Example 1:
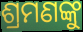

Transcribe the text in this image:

ଶ୍ରମଣଙ୍କୁ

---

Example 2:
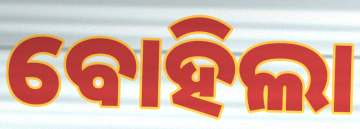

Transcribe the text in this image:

ବୋହିଲା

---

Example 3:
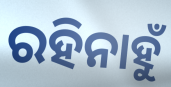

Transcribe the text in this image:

ରହିନାହୁଁ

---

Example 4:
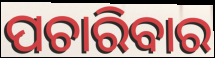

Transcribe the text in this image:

ପଚାରିବାର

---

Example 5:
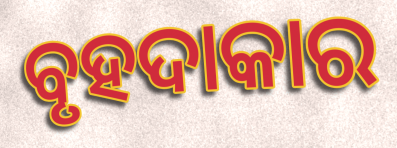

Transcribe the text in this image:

ବୃହଦାକାର